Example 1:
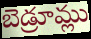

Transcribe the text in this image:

బెడ్రూమ్లు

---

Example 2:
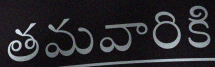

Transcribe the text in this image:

తమవారికి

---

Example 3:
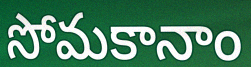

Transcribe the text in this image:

సోమకానాం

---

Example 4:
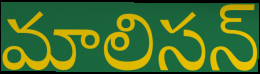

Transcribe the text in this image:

మాలిసన్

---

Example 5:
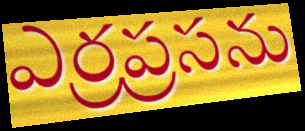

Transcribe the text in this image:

ఎర్రప్రసను